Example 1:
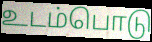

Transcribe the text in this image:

உடம்பொடு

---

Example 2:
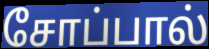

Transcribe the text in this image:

சோப்பால்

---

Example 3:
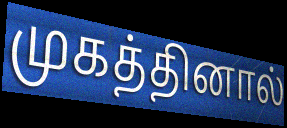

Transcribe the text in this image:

முகத்தினால்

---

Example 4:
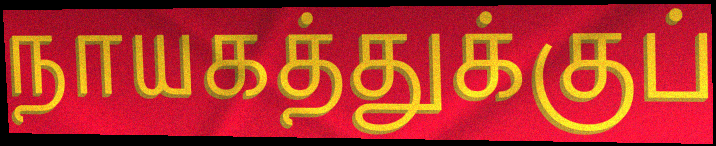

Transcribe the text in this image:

நாயகத்துக்குப்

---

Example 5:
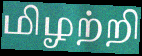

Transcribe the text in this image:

மிழற்றி